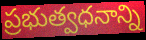
ప్రభుత్వధనాన్ని